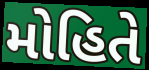
મોહિતે